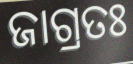
ଜାଗ୍ରତଃ